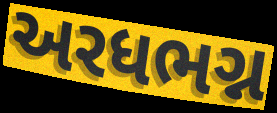
અરધભગ્ન